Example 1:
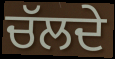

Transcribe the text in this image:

ਚੱਲਦੇ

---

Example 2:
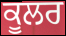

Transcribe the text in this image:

ਕੂਲਰ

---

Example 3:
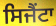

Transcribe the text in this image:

ਸਿਜੈਂਟਾ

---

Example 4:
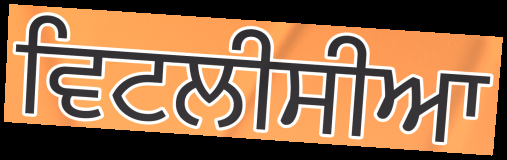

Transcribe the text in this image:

ਵਿਟਲੀਸੀਆ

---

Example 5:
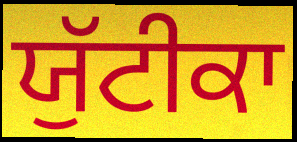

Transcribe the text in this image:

ਯੁੱਟੀਕਾ